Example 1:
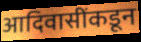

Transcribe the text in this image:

आदिवासींकडून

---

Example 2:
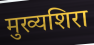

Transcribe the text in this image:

मुख्यशिरा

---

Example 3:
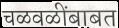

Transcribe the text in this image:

चळवळींबाबत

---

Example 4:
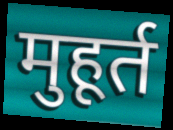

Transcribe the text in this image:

मुहूर्त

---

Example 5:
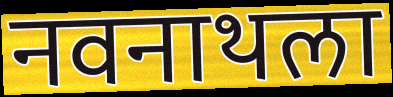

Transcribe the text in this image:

नवनाथला